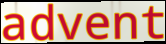
advent